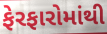
ફેરફારોમાંથી